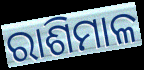
ରାଶିମାଳ